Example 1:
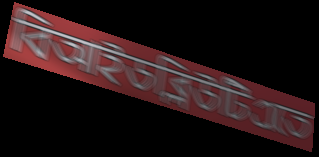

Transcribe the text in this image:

বিআইডব্লিউটিএতে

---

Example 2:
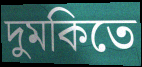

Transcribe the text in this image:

দুমকিতে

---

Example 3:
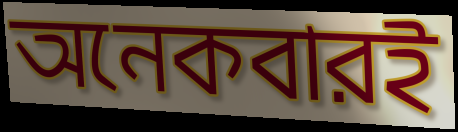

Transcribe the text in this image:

অনেকবারই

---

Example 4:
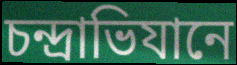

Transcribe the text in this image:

চন্দ্রাভিযানে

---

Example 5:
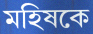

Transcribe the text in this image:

মহিষকে